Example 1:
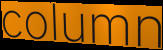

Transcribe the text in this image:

column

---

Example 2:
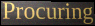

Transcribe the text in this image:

Procuring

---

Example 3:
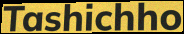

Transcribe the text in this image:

Tashichho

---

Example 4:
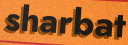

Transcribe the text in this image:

sharbat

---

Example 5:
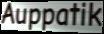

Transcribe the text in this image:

Auppatik